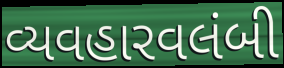
વ્યવહારવલંબી